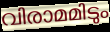
വിരാമമിടും